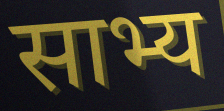
साभ्य